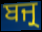
ਬਜ੍ਰ